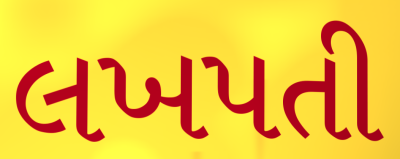
લખપતી